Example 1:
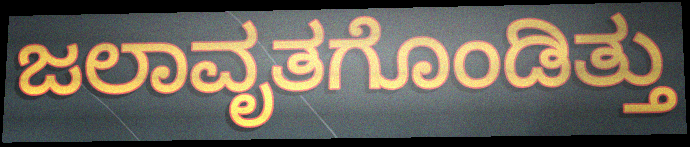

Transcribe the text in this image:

ಜಲಾವೃತಗೊಂಡಿತ್ತು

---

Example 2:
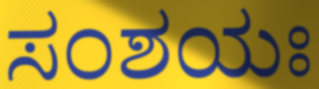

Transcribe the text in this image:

ಸಂಶಯಃ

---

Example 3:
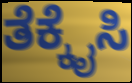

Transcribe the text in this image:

ತೆಕ್ಕೈಸಿ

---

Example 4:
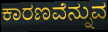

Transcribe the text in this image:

ಕಾರಣವೆನ್ನುವ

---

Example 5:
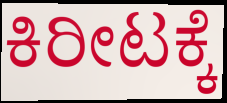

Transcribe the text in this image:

ಕಿರೀಟಕ್ಕೆ